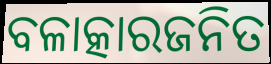
ବଳାତ୍କାରଜନିତ